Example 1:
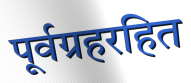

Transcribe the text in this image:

पूर्वग्रहरहित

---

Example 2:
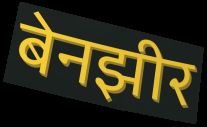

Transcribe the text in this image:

बेनझीर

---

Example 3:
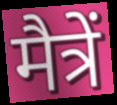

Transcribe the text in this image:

मैत्रें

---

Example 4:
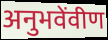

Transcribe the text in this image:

अनुभवेंवीण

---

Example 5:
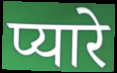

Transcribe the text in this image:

प्यारे